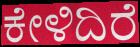
ಕೇಳಿದಿರೆ